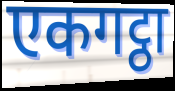
एकगट्ठा